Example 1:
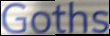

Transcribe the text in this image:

Goths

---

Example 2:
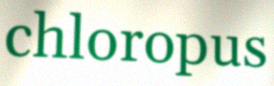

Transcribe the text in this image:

chloropus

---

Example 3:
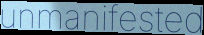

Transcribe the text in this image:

unmanifested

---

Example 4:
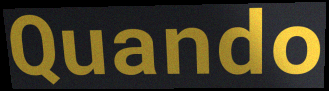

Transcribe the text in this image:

Quando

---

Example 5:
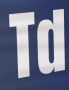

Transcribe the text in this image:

Td